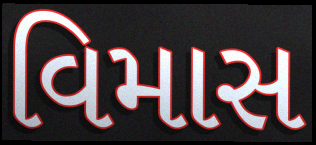
વિમાસ